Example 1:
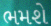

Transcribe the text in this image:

ભમશે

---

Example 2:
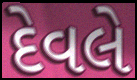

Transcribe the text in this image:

દેવલે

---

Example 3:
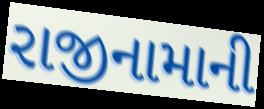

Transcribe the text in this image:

રાજીનામાની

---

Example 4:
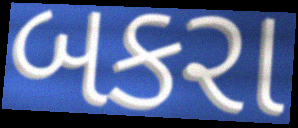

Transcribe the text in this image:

બકરા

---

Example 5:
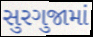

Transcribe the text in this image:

સુરગુજામાં